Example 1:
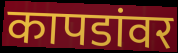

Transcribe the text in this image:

कापडांवर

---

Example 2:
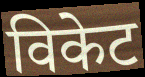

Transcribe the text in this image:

विकेट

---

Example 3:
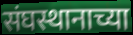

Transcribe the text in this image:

संघस्थानाच्या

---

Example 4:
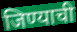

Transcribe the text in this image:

जिण्याची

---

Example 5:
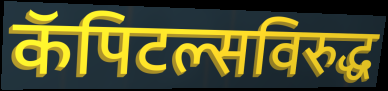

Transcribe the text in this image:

कॅपिटल्सविरुद्ध